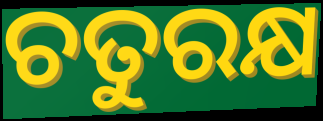
ଚତୁରକ୍ଷ